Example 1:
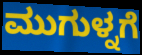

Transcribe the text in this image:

ಮುಗುಳ್ನಗೆ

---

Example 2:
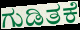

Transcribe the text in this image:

ಗುಡಿತಕೆ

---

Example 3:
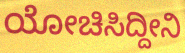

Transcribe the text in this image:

ಯೋಚಿಸಿದ್ದೀನಿ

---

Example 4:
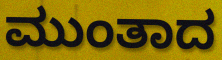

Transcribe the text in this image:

ಮುಂತಾದ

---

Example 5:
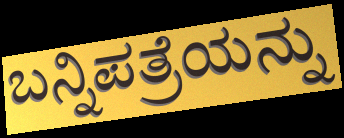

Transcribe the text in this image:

ಬನ್ನಿಪತ್ರೆಯನ್ನು